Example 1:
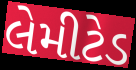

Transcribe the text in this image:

લેમીટેડ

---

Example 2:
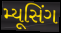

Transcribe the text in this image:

મ્યૂસિંગ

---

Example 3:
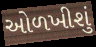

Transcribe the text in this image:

ઓળખીશું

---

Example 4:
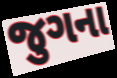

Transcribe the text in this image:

જુગના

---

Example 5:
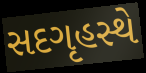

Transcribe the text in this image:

સદગૃહસ્થે